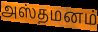
அஸ்தமனம்